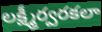
లక్ష్మీర్వరకలా